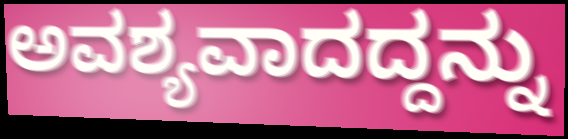
ಅವಶ್ಯವಾದದ್ದನ್ನು